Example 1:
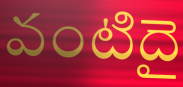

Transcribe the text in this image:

వంటిదై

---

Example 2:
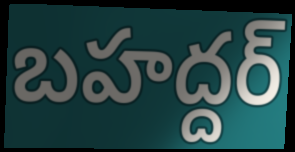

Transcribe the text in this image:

బహద్దర్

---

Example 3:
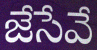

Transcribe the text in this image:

జేసేవే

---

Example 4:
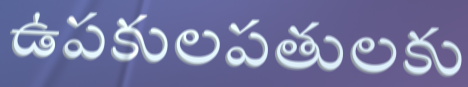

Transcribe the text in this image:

ఉపకులపతులకు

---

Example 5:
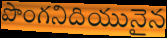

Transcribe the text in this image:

పొంగనిదియునైన